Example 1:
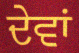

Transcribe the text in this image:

ਦੇਵਾਂ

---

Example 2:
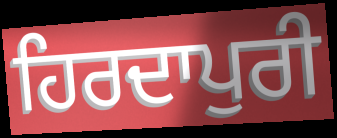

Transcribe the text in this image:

ਹਿਰਦਾਪੁਰੀ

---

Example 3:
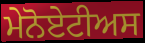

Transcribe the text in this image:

ਮੇਨੋਏਟੀਅਸ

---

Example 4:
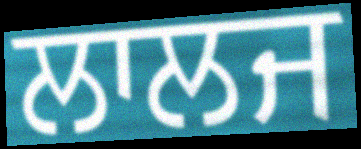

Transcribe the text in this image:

ਲਾਲਜ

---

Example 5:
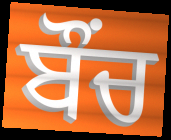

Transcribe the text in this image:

ਬੌਂਚ